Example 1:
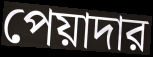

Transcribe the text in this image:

পেয়াদার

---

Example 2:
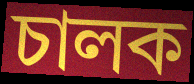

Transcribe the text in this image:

চালক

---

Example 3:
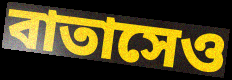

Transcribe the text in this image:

বাতাসেও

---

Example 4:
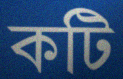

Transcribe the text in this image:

কটি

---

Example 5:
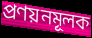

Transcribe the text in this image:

প্রণয়নমূলক